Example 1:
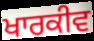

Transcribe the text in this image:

ਖਾਰਕੀਵ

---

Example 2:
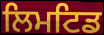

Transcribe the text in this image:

ਲਿਮਟਿਡ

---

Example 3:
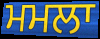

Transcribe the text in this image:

ਮਮਲਾ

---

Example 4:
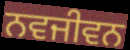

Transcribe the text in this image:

ਨਵਜੀਵਨ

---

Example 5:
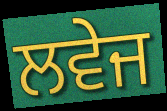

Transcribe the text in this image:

ਲਵੇਜ